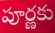
పూర్ణకు